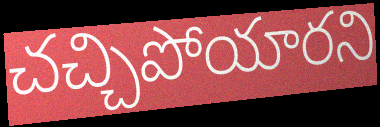
చచ్చిపోయారని